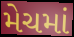
મેચમાં